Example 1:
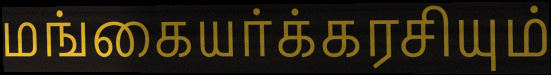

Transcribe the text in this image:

மங்கையர்க்கரசியும்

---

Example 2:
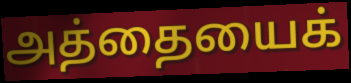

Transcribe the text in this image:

அத்தையைக்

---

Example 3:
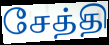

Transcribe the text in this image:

சேத்தி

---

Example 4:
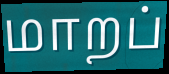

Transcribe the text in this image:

மாறப்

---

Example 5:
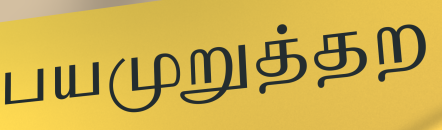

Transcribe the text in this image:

பயமுறுத்தற